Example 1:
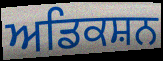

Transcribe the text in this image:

ਅਡਿਕਸ਼ਨ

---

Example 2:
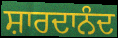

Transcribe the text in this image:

ਸ਼ਾਰਦਾਨੰਦ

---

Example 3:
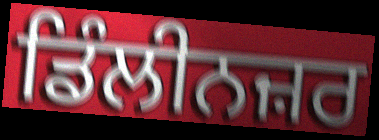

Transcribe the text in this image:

ਡਿੰਲੀਨਜ਼ਰ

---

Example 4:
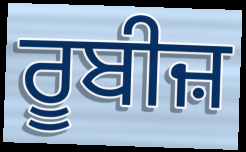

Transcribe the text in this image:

ਰੂਬੀਜ਼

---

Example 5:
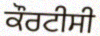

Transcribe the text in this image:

ਕੌਰਟੀਸੀ